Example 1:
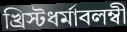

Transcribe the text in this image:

খ্রিস্টধর্মাবলম্বী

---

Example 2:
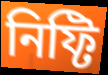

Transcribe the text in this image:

নিফ্টি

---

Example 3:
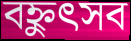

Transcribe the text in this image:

বহ্নুৎসব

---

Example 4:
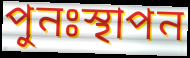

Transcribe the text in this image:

পুনঃস্থাপন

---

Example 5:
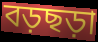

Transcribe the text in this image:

বড়ছড়া